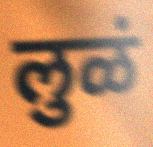
लुळं